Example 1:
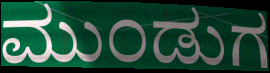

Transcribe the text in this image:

ಮುಂಡುಗ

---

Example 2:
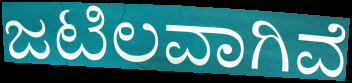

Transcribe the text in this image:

ಜಟಿಲವಾಗಿವೆ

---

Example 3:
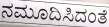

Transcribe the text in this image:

ನಮೂದಿಸಿದಂತೆ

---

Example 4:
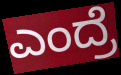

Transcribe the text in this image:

ಎಂದ್ರೆ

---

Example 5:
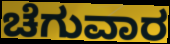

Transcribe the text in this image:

ಚೆಗುವಾರ